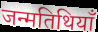
जन्मतिथियाँ